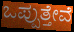
ಒಪ್ಪುತ್ತೇವೆ